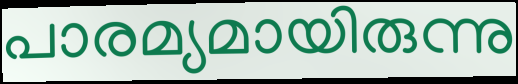
പാരമ്യമായിരുന്നു